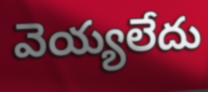
వెయ్యలేదు